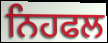
ਨਿਹਫਲ